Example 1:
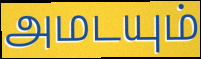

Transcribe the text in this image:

அமடயும்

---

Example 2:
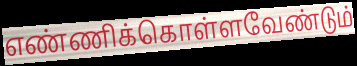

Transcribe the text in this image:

எண்ணிக்கொள்ளவேண்டும்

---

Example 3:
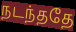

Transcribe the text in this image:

நடந்ததே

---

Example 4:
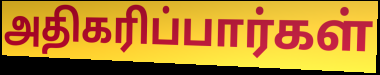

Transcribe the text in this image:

அதிகரிப்பார்கள்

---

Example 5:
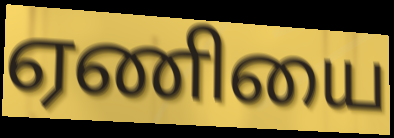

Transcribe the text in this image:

ஏணியை